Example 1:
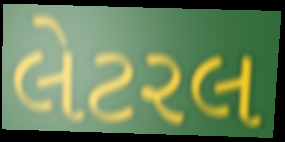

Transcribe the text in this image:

લેટરલ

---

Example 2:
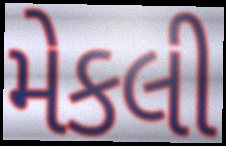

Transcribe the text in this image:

મેકલી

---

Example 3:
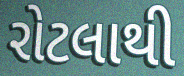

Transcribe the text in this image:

રોટલાથી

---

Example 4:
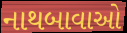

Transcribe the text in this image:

નાથબાવાઓ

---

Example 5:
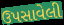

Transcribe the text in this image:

ઉપસાવેલી